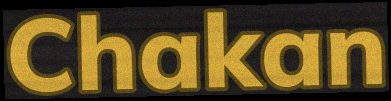
Chakan